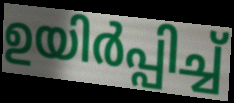
ഉയിർപ്പിച്ച്